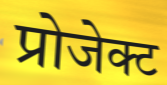
प्रोजेक्ट